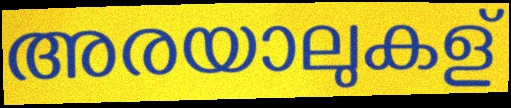
അരയാലുകള്